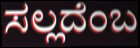
ಸಲ್ಲದೆಂಬ